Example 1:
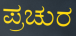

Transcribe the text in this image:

ಪ್ರಚುರ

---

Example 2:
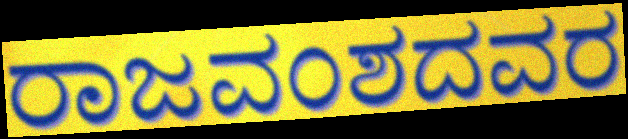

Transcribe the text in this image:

ರಾಜವಂಶದವರ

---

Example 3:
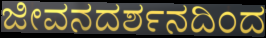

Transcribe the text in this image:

ಜೀವನದರ್ಶನದಿಂದ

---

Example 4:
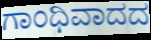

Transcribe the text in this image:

ಗಾಂಧಿವಾದದ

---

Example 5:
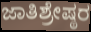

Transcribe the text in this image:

ಜಾತಿಶ್ರೇಷ್ಠರ